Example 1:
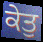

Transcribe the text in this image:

ਕੇਤੁ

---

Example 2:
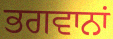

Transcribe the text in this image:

ਭਗਵਾਨਾਂ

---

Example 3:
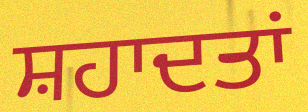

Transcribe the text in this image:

ਸ਼ਹਾਦਤਾਂ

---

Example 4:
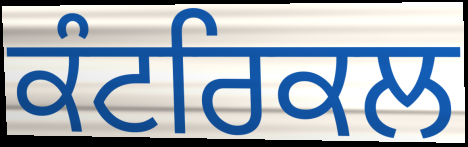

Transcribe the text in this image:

ਕੰਟਰਿਕਲ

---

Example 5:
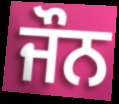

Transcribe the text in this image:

ਜੌਨ